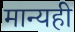
मान्यही